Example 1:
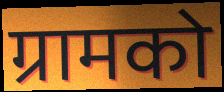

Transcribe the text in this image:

ग्रामको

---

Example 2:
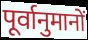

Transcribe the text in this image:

पूर्वानुमानों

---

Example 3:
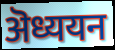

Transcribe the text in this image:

ऄध्ययन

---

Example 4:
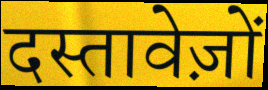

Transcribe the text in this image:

दस्तावेज़ों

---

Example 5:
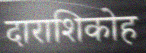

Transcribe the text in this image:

दाराशिकोह